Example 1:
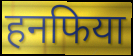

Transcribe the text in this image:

हनफिया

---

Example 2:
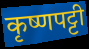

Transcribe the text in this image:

कृष्णपट्टी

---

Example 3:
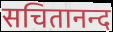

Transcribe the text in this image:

सचितानन्द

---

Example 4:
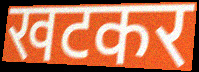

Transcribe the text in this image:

खटकर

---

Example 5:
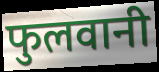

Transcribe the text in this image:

फुलवानी